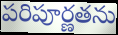
పరిపూర్ణతను